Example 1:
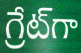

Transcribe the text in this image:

గ్రేట్‌గా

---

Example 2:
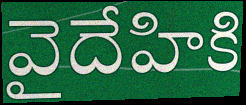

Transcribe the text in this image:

వైదేహికి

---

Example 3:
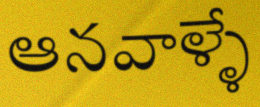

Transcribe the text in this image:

ఆనవాళ్ళే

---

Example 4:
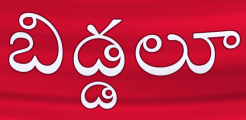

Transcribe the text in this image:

బిడ్డలూ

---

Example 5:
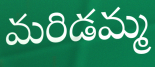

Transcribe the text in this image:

మరిడమ్మ